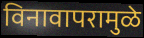
विनावापरामुळे